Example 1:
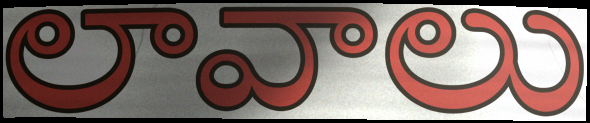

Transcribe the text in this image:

లావాలు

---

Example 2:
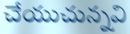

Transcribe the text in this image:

చేయుచున్నవి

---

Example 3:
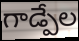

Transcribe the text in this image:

గాడ్పేల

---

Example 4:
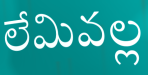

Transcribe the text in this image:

లేమివల్ల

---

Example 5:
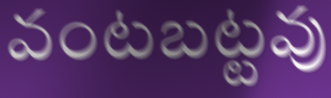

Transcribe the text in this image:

వంటబట్టవు